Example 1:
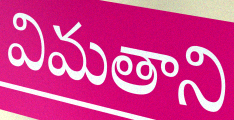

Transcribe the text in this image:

విమతాని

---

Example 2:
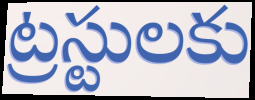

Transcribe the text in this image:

ట్రస్టులకు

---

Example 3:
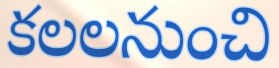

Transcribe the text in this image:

కలలనుంచి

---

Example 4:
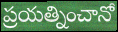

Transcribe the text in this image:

ప్రయత్నించానో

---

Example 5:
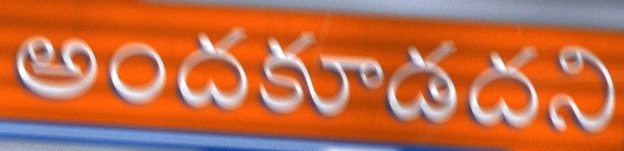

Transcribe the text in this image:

అందకూడదని